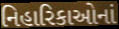
નિહારિકાઓનાં